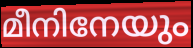
മീനിനേയും